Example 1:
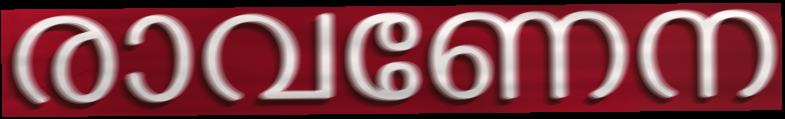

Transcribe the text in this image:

രാവണേന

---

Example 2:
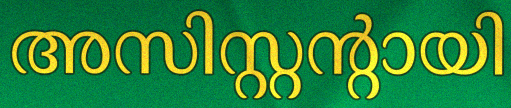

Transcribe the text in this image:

അസിസ്റ്റന്റായി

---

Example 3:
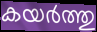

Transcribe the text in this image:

കയർത്തു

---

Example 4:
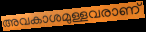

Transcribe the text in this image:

അവകാശമുള്ളവരാണ്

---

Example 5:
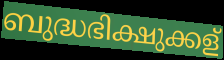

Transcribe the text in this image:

ബുദ്ധഭിക്ഷുക്കള്